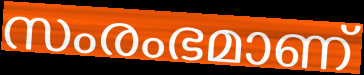
സംരംഭമാണ്